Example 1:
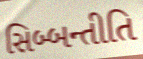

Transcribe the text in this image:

સિબ્બન્તીતિ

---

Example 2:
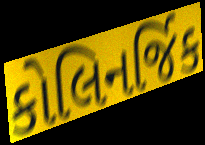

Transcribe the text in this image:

કોલિનર્જિક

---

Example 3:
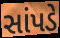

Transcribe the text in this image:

સાંપડે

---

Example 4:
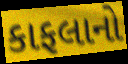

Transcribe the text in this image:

કાફલાનો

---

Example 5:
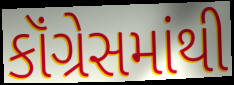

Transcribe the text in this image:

કૉંગ્રેસમાંથી